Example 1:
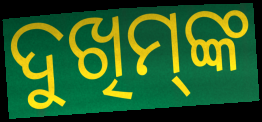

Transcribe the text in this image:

ଦୁଖିମ୍‌ଙ୍କ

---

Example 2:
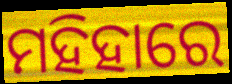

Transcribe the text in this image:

ମହିହାରେ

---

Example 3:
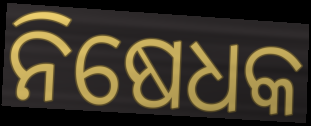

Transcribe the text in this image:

ନିଷେଧକ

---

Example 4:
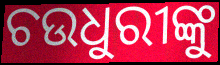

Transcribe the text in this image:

ଚଉଧୁରୀଙ୍କୁ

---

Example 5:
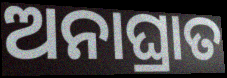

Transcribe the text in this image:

ଅନାଘ୍ରାତ